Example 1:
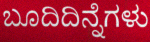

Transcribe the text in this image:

ಬೂದಿದಿನ್ನೆಗಳು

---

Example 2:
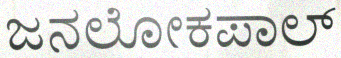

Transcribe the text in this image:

ಜನಲೋಕಪಾಲ್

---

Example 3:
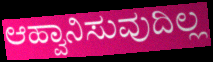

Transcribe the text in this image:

ಆಹ್ವಾನಿಸುವುದಿಲ್ಲ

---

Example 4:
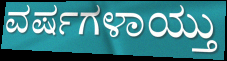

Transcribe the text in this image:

ವರ್ಷಗಳಾಯ್ತು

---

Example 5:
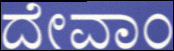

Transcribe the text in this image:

ದೇವಾಂ